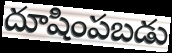
దూషింపబడు